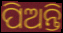
ପିଅନ୍ତି